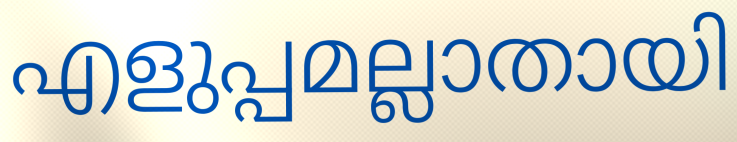
എളുപ്പമല്ലാതായി